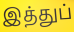
இத்துப்